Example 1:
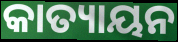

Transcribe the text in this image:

କାତ୍ୟାୟନ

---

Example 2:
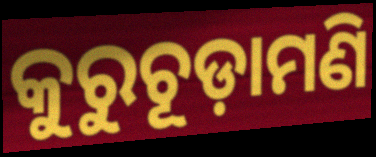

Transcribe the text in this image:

କୁରୁଚୂଡ଼ାମଣି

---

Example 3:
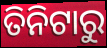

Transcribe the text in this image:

ତିନିଟାରୁ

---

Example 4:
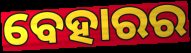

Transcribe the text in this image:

ବେହାରର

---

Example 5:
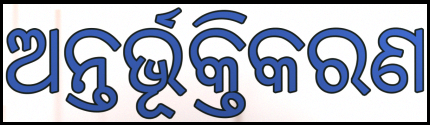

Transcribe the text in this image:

ଅନ୍ତର୍ଭୂକ୍ତିକରଣ